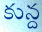
కున్ద